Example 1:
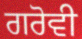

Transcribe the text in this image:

ਗਰੋਵੀ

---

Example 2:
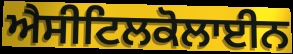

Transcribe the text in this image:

ਐਸੀਟਿਲਕੋਲਾਈਨ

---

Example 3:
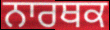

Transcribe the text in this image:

ਨਾਰਥਕ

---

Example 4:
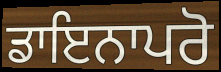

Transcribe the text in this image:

ਡਾਇਨਾਪਰੋ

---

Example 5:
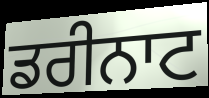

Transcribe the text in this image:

ਡਰੀਨਾਟ